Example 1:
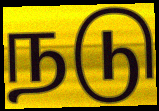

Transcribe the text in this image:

நடு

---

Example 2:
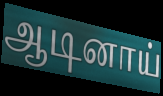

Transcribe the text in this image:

ஆடினாய்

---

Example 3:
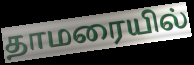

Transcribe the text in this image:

தாமரையில்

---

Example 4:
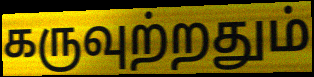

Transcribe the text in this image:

கருவுற்றதும்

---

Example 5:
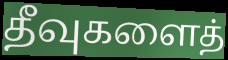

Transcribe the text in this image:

தீவுகளைத்